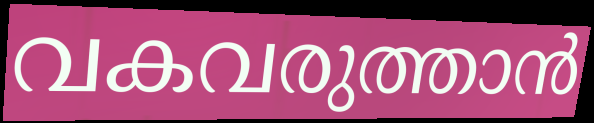
വകവരുത്താൻ